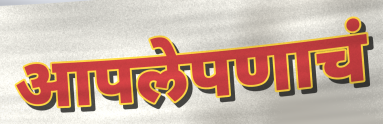
आपलेपणाचं